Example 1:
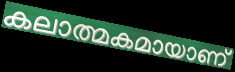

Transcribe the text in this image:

കലാത്മകമായാണ്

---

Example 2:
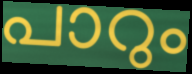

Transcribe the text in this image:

പാറും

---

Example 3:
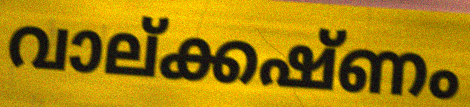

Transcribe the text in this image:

വാല്ക്കഷ്ണം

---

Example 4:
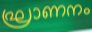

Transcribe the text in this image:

ഘ്രാണനം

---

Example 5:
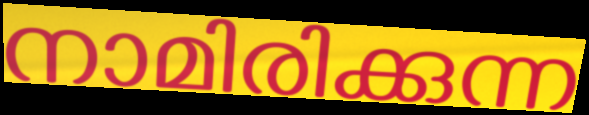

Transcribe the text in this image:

നാമിരിക്കുന്ന